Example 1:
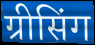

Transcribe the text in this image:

ग्रीसिंग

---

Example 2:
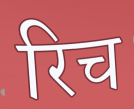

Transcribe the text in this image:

रिच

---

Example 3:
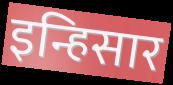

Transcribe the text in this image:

इन्हिसार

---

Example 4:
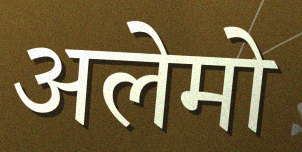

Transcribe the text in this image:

अलेमो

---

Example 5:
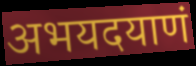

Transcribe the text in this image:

अभयदयाणं